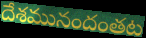
దేశమునందంతట